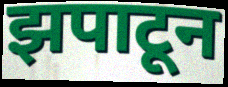
झपाटून